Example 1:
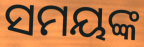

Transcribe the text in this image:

ସମୟଙ୍କ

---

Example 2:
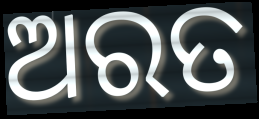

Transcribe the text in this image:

ଅରତ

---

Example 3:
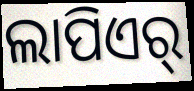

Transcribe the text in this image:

ଲାପିଏର୍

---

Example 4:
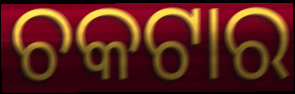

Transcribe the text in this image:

ଚକଟାର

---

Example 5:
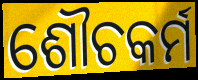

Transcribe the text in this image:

ଶୌଚକର୍ମ